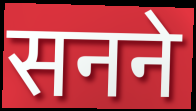
सनने